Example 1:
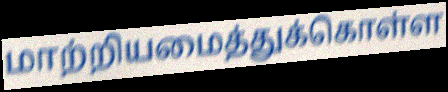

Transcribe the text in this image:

மாற்றியமைத்துக்கொள்ள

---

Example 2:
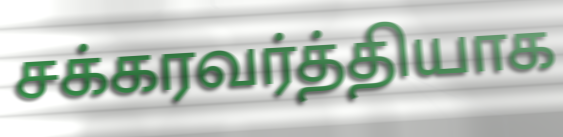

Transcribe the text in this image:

சக்கரவர்த்தியாக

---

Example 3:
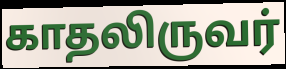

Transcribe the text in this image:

காதலிருவர்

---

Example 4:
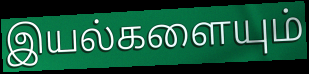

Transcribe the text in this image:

இயல்களையும்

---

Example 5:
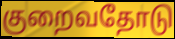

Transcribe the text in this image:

குறைவதோடு